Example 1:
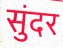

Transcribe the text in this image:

सुंदर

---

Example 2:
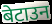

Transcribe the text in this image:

बेटाउन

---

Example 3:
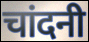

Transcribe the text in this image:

चांदनी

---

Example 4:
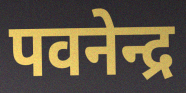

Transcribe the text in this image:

पवनेन्द्र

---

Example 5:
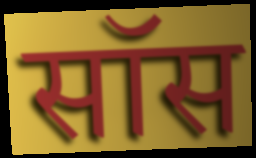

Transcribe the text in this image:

सॉस